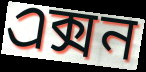
এক্সন